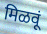
मिळवूं